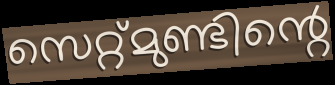
സെറ്റ്മുണ്ടിന്റെ